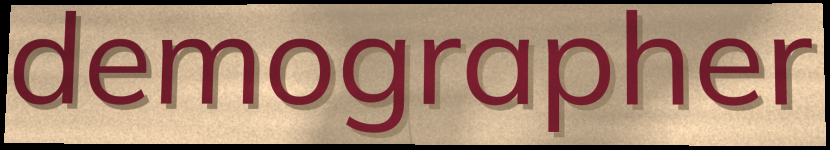
demographer